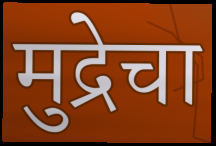
मुद्रेचा